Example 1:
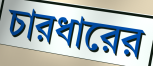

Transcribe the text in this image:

চারধারের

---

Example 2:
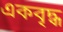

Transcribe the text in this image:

একবৃদ্ধ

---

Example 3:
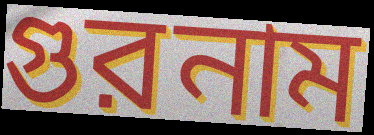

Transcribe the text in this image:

গুরনাম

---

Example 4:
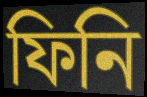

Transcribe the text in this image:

ফিনি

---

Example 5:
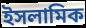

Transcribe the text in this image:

ইসলামিক